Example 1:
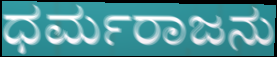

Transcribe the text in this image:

ಧರ್ಮರಾಜನು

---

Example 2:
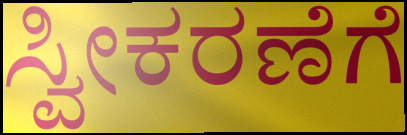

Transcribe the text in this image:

ಸ್ವೀಕರಣೆಗೆ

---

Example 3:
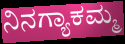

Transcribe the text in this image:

ನಿನಗ್ಯಾಕಮ್ಮ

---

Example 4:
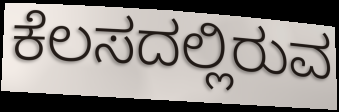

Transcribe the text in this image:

ಕೆಲಸದಲ್ಲಿರುವ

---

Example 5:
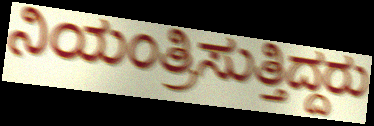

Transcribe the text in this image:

ನಿಯಂತ್ರಿಸುತ್ತಿದ್ದರು